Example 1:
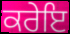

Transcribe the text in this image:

ਕਰੇਇ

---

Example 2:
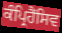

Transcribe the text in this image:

ਕੰਪ੍ਰਿਹੈਂਸਿਵ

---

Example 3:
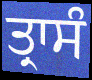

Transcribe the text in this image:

ਤ੍ਰਾਸੰ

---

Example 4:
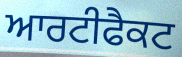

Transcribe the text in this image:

ਆਰਟੀਫੈਕਟ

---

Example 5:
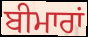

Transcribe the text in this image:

ਬੀਮਾਰਾਂ